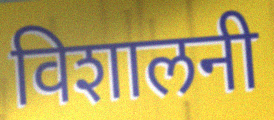
विशालनी